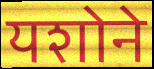
यशोने